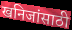
खनिजांसाठी